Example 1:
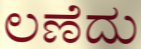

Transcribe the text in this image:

ಲಣೆದು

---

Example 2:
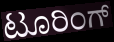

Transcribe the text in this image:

ಟೂರಿಂಗ್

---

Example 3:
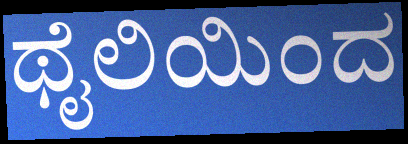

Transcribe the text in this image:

ಥೈಲಿಯಿಂದ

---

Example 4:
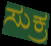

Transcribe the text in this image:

ಸುಕ್ರ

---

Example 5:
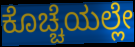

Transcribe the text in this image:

ಕೊಚ್ಚೆಯಲ್ಲೇ